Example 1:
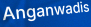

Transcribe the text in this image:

Anganwadis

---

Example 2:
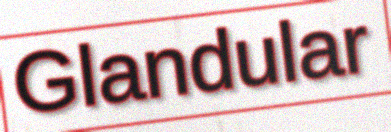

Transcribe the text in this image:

Glandular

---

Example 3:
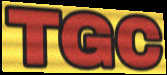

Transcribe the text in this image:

TGC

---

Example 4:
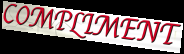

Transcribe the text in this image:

COMPLIMENT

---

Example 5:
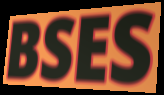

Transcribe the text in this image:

BSES